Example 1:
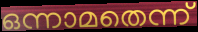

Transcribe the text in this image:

ഒന്നാമതെന്ന്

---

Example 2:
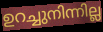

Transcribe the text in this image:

ഉറച്ചുനിന്നില്ല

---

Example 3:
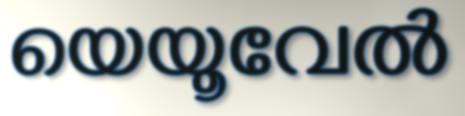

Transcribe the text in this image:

യെയൂവേൽ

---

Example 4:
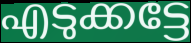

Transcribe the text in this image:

എടുക്കട്ടേ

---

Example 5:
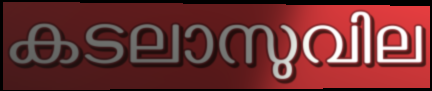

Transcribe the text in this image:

കടലാസുവില